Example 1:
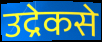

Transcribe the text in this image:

उद्रेकसे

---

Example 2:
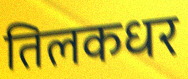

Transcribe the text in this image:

तिलकधर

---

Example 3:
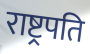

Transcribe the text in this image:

राष्ट्र्रपति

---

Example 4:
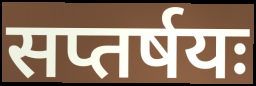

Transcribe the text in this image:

सप्तर्षयः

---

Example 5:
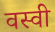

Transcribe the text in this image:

वस्वी